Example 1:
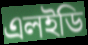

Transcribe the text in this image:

এলইডি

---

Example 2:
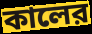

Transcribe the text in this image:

কালের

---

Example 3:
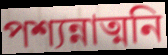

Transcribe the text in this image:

পশ্যন্নাত্মনি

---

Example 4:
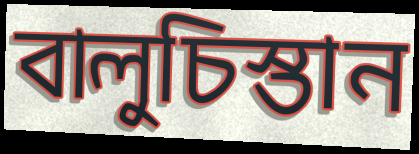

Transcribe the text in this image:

বালুচিস্তান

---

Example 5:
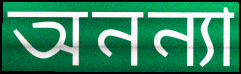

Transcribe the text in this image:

অনন্যা